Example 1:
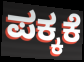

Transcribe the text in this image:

ಪಕ್ಕಕೆ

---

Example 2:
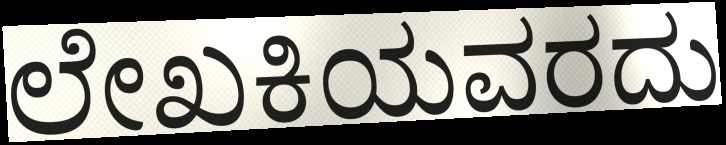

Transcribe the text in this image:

ಲೇಖಕಿಯವರದು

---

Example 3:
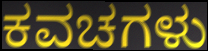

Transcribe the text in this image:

ಕವಚಗಳು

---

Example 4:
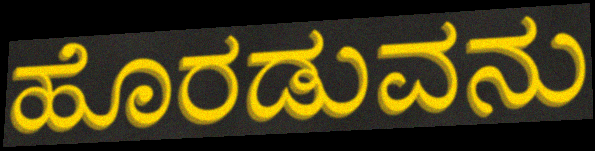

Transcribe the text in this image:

ಹೊರಡುವನು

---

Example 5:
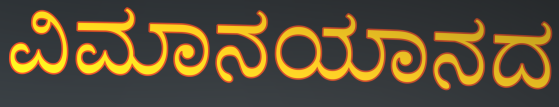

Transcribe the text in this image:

ವಿಮಾನಯಾನದ